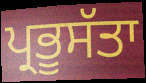
ਪ੍ਰਭੂਸੱਤਾ